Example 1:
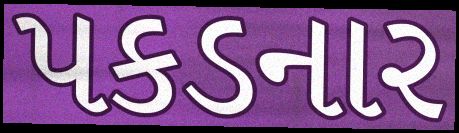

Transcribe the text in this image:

પકડનાર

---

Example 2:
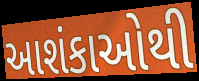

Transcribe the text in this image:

આશંકાઓથી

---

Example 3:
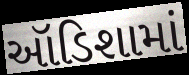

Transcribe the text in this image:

ઑડિશામાં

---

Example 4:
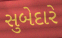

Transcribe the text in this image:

સુબેદારે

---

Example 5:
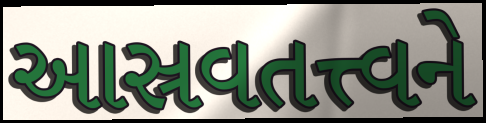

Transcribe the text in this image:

આસ્રવતત્ત્વને